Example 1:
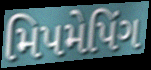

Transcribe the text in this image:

મિપમેપિંગ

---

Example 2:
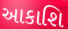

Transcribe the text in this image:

આકાશિ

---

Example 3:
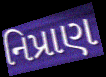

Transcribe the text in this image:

નિપ્રાણ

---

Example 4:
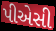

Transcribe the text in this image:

પીએસી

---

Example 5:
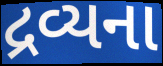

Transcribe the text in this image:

દ્રવ્યના